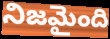
నిజమైంది